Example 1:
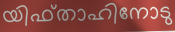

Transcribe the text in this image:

യിഫ്താഹിനോടു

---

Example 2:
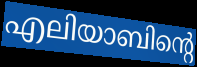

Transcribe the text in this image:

എലിയാബിന്റെ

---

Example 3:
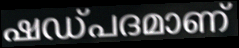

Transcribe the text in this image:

ഷഡ്പദമാണ്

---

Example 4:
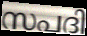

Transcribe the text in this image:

സപദി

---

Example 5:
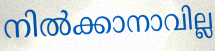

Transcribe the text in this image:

നിൽക്കാനാവില്ല